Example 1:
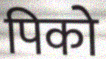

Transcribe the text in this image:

पिको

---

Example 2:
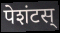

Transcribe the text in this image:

पेशंटस्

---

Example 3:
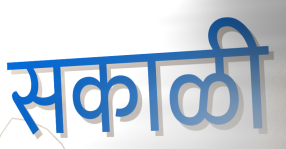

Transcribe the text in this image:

सकाळी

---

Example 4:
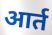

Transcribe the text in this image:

आर्त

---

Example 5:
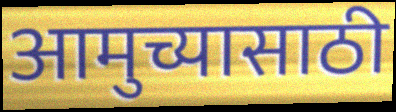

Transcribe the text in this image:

आमुच्यासाठी